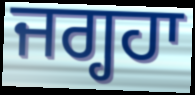
ਜਗ੍ਹਹਾ